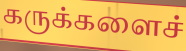
கருக்களைச்